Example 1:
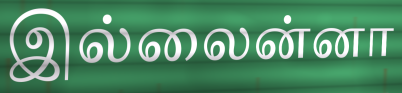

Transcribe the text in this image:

இல்லைன்னா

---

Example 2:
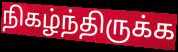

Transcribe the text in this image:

நிகழ்ந்திருக்க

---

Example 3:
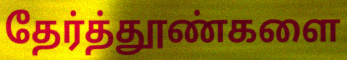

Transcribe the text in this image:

தேர்த்தூண்களை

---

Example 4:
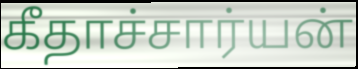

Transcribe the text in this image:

கீதாச்சார்யன்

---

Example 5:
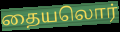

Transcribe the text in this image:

தையலொர்